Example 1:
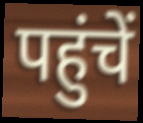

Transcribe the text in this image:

पहुंचें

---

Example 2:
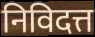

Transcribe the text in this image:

निविदत्त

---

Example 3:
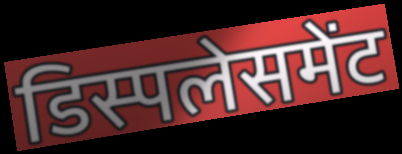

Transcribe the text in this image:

डिस्पलेसमेंट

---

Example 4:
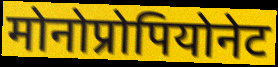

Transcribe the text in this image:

मोनोप्रोपियोनेट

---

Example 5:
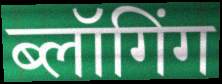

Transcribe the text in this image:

ब्लॉगिंग